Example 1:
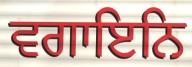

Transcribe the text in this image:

ਵਗਾਇਨਿ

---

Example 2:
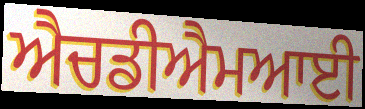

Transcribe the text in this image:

ਐਚਡੀਐਮਆਈ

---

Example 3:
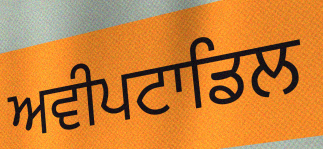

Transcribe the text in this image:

ਅਵੀਪਟਾਡਿਲ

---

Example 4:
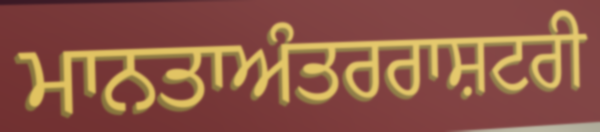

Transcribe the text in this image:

ਮਾਨਤਾਅੰਤਰਰਾਸ਼ਟਰੀ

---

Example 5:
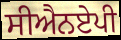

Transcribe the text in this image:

ਸੀਐਨਏਪੀ